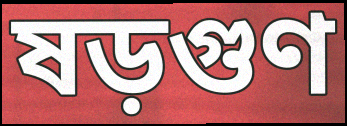
ষড়গুণ